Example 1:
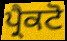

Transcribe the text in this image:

ਪ੍ਰੈਕਟੋ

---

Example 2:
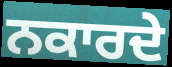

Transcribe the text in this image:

ਨਕਾਰਦੇ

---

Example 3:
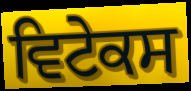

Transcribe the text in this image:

ਵਿਟੇਕਸ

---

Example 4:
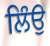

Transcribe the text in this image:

ਲਿੰਉ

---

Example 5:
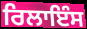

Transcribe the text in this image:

ਰਿਲਾਇੰਸ